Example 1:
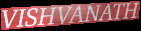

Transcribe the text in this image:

VISHVANATH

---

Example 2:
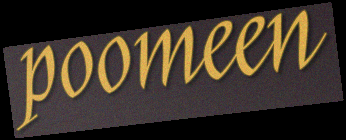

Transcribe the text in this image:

poomeen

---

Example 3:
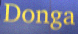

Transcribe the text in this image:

Donga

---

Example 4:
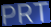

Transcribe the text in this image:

PRT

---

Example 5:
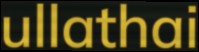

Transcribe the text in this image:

ullathai